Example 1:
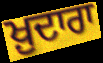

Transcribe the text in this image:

ਖ਼ੁਦਾਰਾ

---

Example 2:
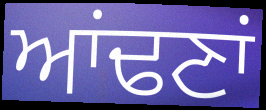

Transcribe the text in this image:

ਆਂਢਣਾਂ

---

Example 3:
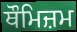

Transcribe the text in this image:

ਥੌਮਿਜ਼ਮ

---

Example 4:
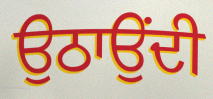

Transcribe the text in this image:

ਉਠਾਉਂਦੀ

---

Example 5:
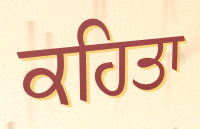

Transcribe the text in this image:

ਕਹਿਤਾ